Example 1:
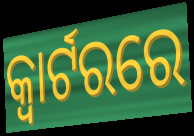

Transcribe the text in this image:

କ୍ବାର୍ଟରରେ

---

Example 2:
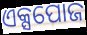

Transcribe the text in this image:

ଏକ୍ସପୋଜ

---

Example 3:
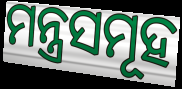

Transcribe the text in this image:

ମନ୍ତ୍ରସମୂହ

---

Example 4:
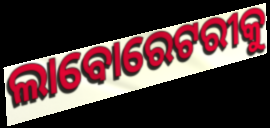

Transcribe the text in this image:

ଲାବୋରେଟରୀକୁ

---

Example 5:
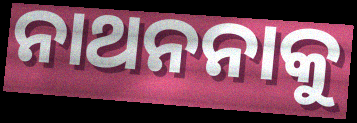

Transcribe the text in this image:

ନାଥନନାକୁ